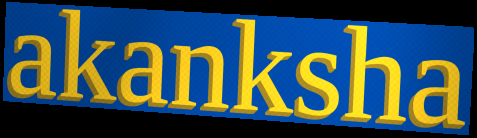
akanksha